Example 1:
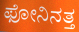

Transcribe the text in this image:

ಫೋನಿನತ್ತ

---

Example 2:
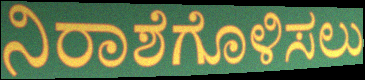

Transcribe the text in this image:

ನಿರಾಶೆಗೊಳಿಸಲು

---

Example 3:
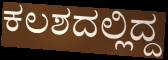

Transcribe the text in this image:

ಕಲಶದಲ್ಲಿದ್ದ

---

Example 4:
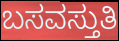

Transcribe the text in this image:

ಬಸವಸ್ತುತಿ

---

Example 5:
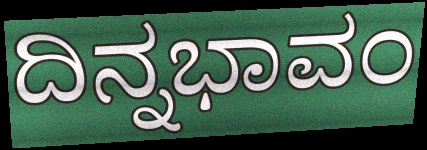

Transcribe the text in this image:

ದಿನ್ನಭಾವಂ